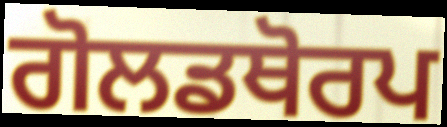
ਗੋਲਡਥੋਰਪ